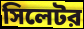
সিলেটর